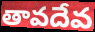
తావదేవ